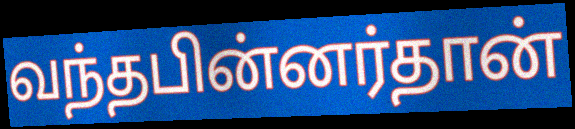
வந்தபின்னர்தான்